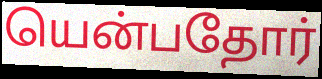
யென்பதோர்